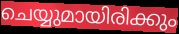
ചെയ്യുമായിരിക്കും